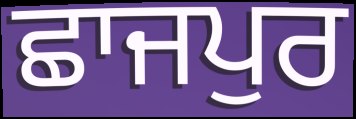
ਛਾਜਪੁਰ